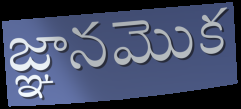
జ్ఞానమొక